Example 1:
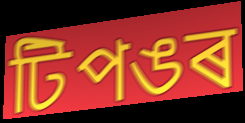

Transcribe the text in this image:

টিপঙৰ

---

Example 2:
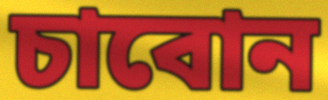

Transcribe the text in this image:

চাবোন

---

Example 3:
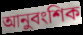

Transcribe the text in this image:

আনুবংশিক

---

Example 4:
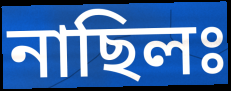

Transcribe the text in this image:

নাছিলঃ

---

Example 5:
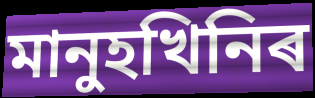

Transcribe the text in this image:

মানুহখিনিৰ